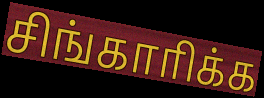
சிங்காரிக்க